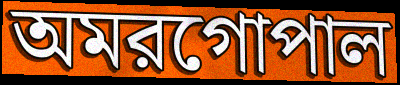
অমরগোপাল